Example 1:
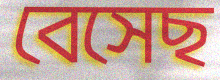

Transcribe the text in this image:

বেসেছ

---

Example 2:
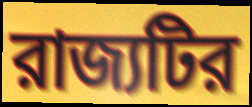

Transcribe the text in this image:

রাজ্যটির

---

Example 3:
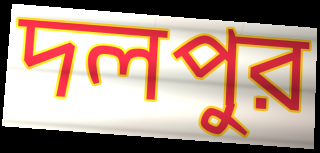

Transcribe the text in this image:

দলপুর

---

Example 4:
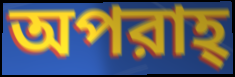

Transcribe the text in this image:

অপরাহ্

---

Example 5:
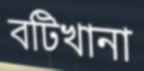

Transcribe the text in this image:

বটিখানা